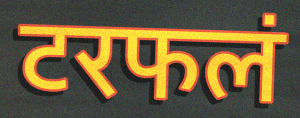
टरफलं